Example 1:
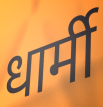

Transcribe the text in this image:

धार्मी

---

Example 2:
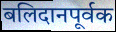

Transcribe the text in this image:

बलिदानपूर्वक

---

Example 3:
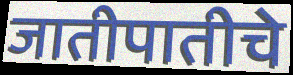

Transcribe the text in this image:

जातीपातीचे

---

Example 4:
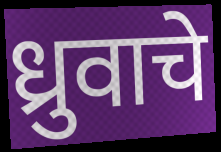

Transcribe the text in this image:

ध्रुवाचे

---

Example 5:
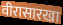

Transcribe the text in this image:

वीरासारखा